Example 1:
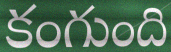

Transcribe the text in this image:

కంగుంది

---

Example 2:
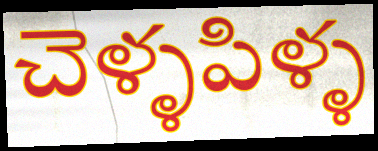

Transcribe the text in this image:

చెళ్ళపిళ్ళ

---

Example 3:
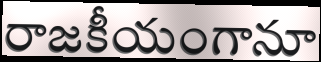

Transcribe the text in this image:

రాజకీయంగానూ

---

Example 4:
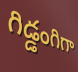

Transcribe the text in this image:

గిడ్డంగిగా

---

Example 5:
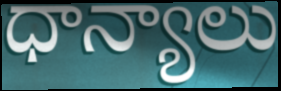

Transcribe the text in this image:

ధాన్యాలు